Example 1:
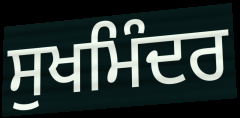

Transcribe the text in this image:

ਸੁਖਮਿੰਦਰ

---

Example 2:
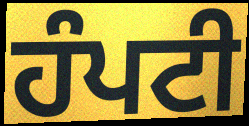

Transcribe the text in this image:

ਹੰਪਟੀ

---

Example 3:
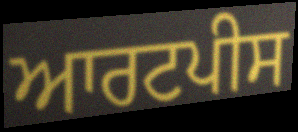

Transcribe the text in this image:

ਆਰਟਪੀਸ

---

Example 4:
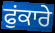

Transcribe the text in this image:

ਫੁਂਕਾਰੇ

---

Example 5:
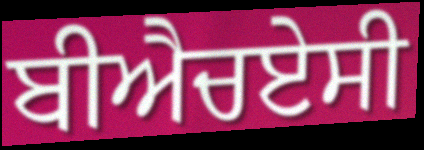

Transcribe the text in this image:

ਬੀਐਚਏਸੀ